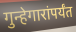
गुन्हेगारांपर्यंत